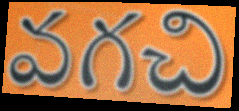
వగచి